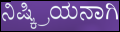
ನಿಷ್ಕ್ರಿಯನಾಗಿ